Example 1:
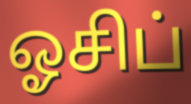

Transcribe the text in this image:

ஓசிப்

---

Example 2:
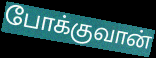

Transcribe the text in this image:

போக்குவான்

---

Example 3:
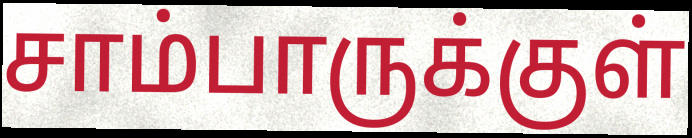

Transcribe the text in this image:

சாம்பாருக்குள்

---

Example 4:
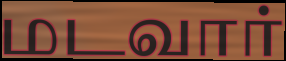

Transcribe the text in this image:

மடவார்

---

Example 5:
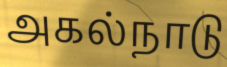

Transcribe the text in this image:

அகல்நாடு